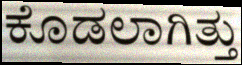
ಕೊಡಲಾಗಿತ್ತು